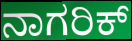
ನಾಗರಿಕ್